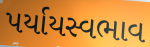
પર્યાયસ્વભાવ